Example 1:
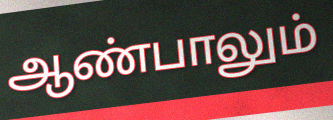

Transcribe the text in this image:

ஆண்பாலும்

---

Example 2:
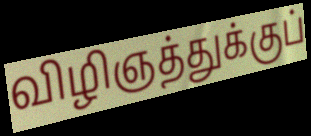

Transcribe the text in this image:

விழிஞத்துக்குப்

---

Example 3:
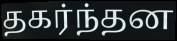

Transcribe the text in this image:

தகர்ந்தன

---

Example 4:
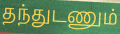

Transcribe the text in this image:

தந்துடணும்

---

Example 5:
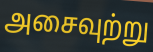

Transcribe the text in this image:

அசைவுற்று